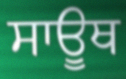
ਸਾਊਥ